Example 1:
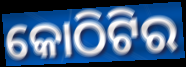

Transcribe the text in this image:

କୋଠିଟିର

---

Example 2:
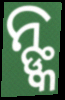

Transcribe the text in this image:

ନ୍ଙ୍କ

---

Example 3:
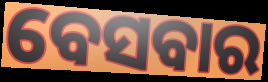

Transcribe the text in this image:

ବେସବାର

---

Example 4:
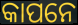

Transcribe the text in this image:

କାପନେ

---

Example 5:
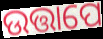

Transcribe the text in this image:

ଉତ୍ତାପେ